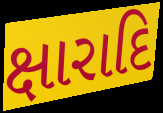
ક્ષારાદિ